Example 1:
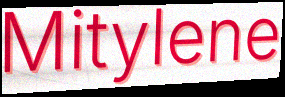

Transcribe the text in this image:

Mitylene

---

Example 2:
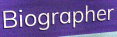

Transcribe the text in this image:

Biographer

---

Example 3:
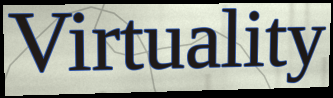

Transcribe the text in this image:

Virtuality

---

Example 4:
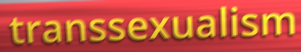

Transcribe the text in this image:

transsexualism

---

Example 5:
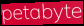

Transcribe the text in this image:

petabyte